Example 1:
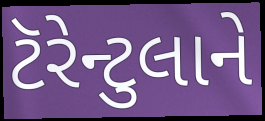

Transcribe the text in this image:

ટૅરેન્ટુલાને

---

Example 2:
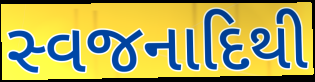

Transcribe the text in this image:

સ્વજનાદિથી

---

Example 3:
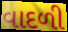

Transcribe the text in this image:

વાદળી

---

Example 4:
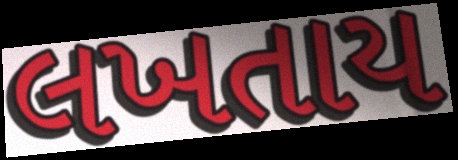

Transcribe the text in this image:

લખતાય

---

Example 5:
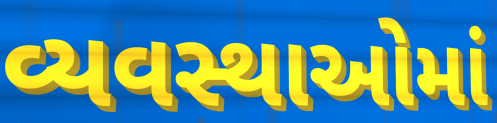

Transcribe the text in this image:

વ્યવસ્થાઓમાં